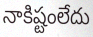
నాకిష్టంలేదు